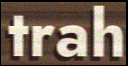
trah